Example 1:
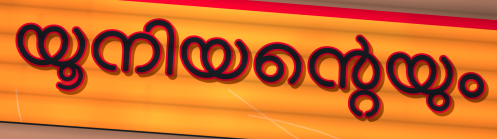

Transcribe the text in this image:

യൂനിയന്റെയും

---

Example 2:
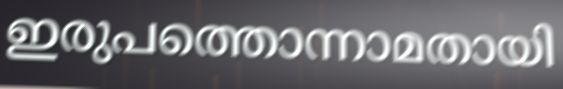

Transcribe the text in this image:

ഇരുപത്തൊന്നാമതായി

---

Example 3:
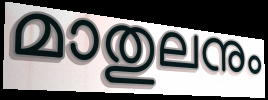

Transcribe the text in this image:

മാതുലനും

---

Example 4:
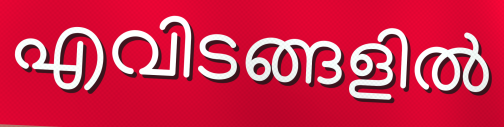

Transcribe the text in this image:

എവിടങ്ങളിൽ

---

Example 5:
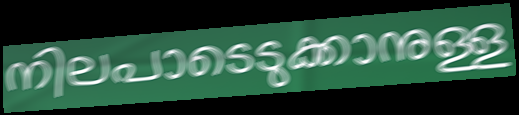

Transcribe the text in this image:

നിലപാടെടുക്കാനുള്ള